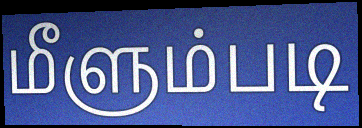
மீளும்படி